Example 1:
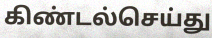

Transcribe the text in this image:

கிண்டல்செய்து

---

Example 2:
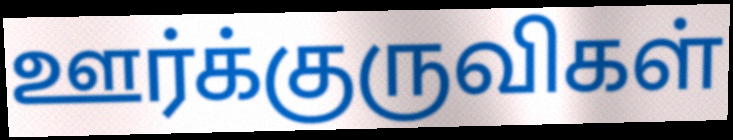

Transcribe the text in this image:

ஊர்க்குருவிகள்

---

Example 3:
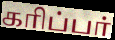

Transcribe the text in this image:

கரிப்பர்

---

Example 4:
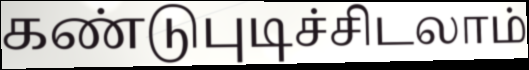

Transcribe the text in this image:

கண்டுபுடிச்சிடலாம்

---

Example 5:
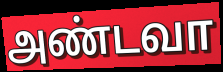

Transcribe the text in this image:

அண்டவா